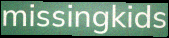
missingkids